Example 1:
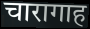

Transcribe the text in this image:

चारागाह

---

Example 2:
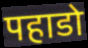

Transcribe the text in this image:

पहाडो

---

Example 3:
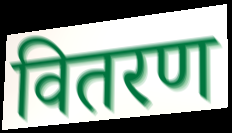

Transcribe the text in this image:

वितरण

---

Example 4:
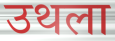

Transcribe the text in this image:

उथला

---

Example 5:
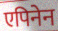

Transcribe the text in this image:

एपिनेन